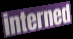
interned